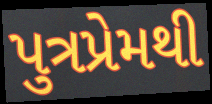
પુત્રપ્રેમથી